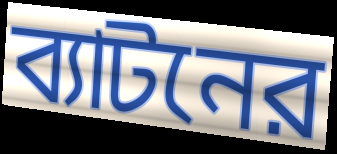
ব্যাটনের